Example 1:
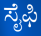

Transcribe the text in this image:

ಸೈಫಿ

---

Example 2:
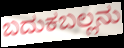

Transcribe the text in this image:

ಬದುಕಬಲ್ಲನು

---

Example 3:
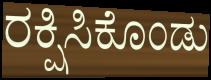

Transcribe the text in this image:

ರಕ್ಷಿಸಿಕೊಂಡು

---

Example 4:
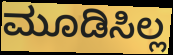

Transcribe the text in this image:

ಮೂಡಿಸಿಲ್ಲ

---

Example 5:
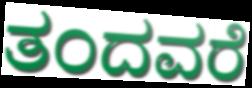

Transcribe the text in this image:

ತಂದವರೆ